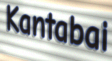
Kantabai